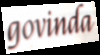
govinda